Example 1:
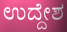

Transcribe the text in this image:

ಉದ್ದೇಶ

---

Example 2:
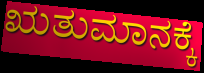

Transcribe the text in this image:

ಋತುಮಾನಕ್ಕೆ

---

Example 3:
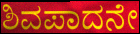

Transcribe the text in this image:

ಶಿವಪಾದನೇ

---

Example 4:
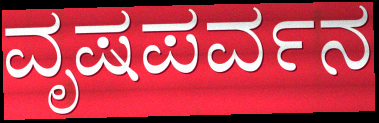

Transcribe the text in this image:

ವೃಷಪರ್ವನ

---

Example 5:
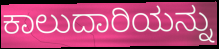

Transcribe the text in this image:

ಕಾಲುದಾರಿಯನ್ನು